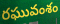
రఘువంశం